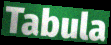
Tabula